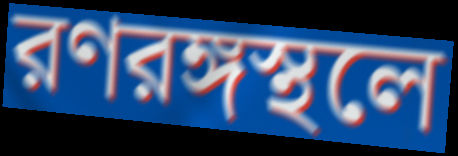
রণরঙ্গস্থলে